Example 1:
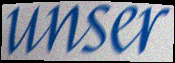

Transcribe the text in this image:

unser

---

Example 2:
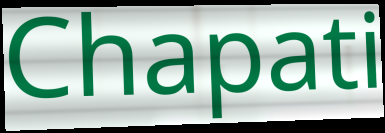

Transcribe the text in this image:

Chapati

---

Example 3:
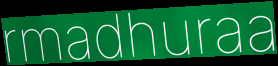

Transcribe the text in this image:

rmadhuraa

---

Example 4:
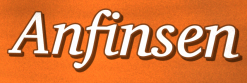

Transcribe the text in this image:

Anfinsen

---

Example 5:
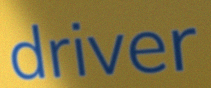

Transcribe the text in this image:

driver